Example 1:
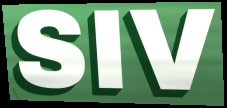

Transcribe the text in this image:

SIV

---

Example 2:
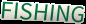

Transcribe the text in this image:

FISHING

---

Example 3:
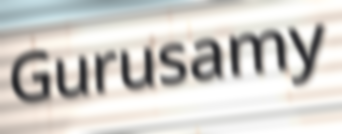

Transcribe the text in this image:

Gurusamy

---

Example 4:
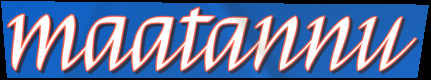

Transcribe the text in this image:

maatannu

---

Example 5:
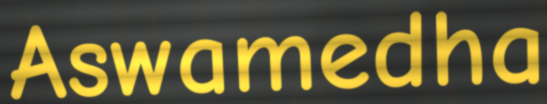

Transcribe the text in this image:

Aswamedha